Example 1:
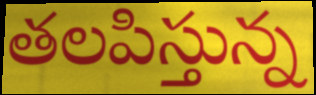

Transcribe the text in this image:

తలపిస్తున్న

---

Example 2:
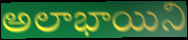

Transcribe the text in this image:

అలాభాయిని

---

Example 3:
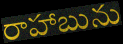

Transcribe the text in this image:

రాహాబును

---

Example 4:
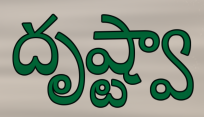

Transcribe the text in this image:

దృష్ట్వా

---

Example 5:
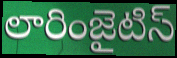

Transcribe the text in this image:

లారింజైటిస్